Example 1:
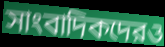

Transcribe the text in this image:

সাংবাদিকদেরও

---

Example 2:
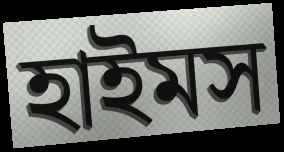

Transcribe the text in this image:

হাইমস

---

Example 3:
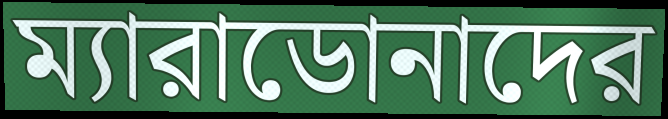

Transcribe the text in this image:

ম্যারাডোনাদের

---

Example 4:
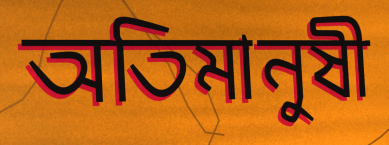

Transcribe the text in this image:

অতিমানুষী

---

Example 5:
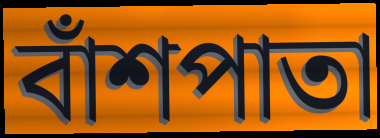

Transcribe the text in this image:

বাঁশপাতা